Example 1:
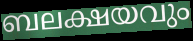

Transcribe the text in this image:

ബലക്ഷയവും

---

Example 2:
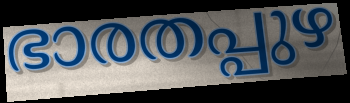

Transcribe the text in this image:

ഭാരതപ്പുഴ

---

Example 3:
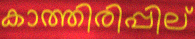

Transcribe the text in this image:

കാത്തിരിപ്പില്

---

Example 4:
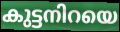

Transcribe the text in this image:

കുട്ടനിറയെ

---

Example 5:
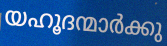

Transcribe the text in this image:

യഹൂദന്മാർക്കു